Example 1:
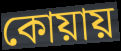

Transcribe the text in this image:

কোয়ায়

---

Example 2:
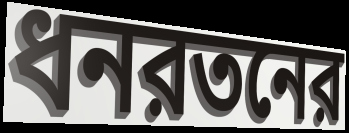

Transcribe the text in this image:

ধনরতনের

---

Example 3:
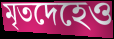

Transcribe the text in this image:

মৃতদেহেও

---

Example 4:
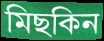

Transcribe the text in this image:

মিছকিন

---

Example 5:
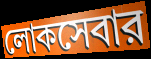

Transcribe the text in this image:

লোকসেবার